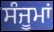
ਸੰਜੂਮਾਂ